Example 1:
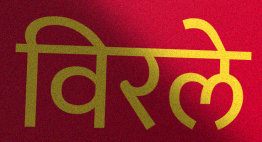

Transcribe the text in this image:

विरले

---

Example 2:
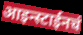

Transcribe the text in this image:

आइन्स्टाईनचं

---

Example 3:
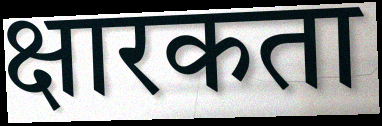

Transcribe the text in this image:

क्षारकता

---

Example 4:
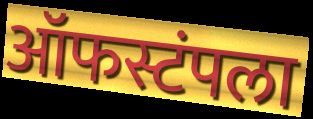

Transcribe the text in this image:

ऑफस्टंपला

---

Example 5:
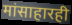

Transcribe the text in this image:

मांसाहारही